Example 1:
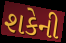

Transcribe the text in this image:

શકેની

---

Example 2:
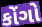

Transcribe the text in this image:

કોંગો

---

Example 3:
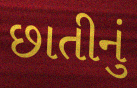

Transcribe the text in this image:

છાતીનું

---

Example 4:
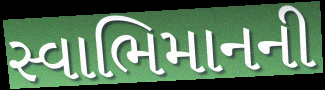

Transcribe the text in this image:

સ્વાભિમાનની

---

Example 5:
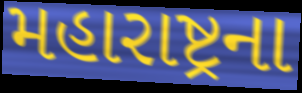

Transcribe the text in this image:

મહારાષ્ટ્રના